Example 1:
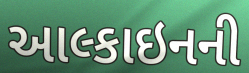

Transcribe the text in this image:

આલ્કાઇનની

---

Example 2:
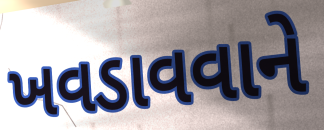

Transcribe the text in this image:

ખવડાવવાને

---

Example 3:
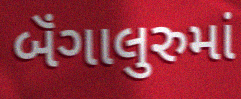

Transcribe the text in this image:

બૅંગાલુરુમાં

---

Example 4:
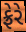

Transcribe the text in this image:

ફ્રેરે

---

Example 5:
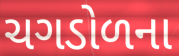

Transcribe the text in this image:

ચગડોળના